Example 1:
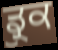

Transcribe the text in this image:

ਡ੍ਰੁਕ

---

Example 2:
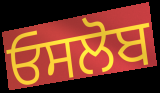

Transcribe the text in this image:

ਓਸਲੋਬ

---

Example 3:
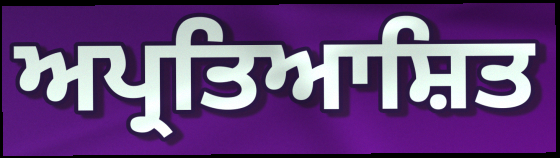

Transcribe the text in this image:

ਅਪ੍ਰਤਿਆਸ਼ਿਤ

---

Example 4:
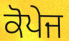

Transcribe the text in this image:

ਕੋਪੇਜ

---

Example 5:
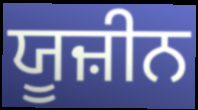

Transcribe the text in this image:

ਯੂਜ਼ੀਨ